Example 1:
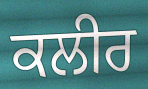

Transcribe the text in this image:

ਕਲੀਰ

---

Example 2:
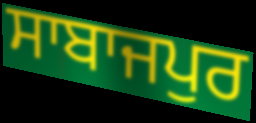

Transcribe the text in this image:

ਸਾਬਾਜਪੁਰ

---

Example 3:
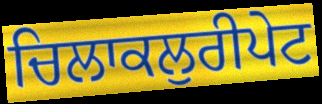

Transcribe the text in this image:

ਚਿਲਾਕਲੁਰੀਪੇਟ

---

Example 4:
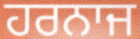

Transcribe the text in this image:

ਹਰਨਾਜ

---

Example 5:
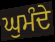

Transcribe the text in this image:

ਘੁਮੰਦੇ